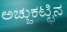
ಅಚ್ಚುಕಟ್ಟಿನ